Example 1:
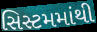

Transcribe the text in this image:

સિસ્ટમમાંથી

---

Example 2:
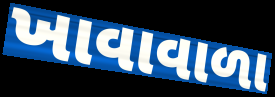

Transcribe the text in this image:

ખાવાવાળા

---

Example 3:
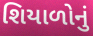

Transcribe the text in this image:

શિયાળોનું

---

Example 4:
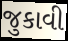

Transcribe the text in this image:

જુકાવી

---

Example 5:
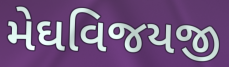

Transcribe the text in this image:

મેઘવિજયજી